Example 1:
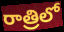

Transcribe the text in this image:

రాత్రిలో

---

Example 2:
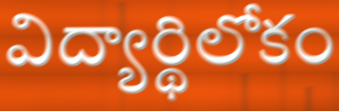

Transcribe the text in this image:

విద్యార్థిలోకం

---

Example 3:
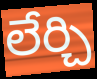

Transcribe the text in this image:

లేర్చి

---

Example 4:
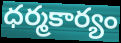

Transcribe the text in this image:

ధర్మకార్యం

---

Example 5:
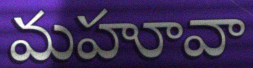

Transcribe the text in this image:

మహూవా